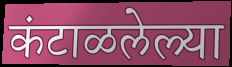
कंटाळलेल्या